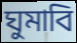
ঘুমাবি